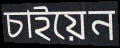
চাইয়েন